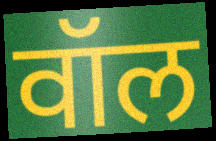
वॉल